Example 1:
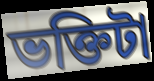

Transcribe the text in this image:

ভক্তিটা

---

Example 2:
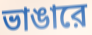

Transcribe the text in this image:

ভাঙারে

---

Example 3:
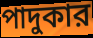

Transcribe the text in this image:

পাদুকার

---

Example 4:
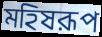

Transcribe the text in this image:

মহিষরূপ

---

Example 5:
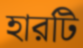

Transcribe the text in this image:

হারটি